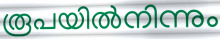
രൂപയിൽനിന്നും